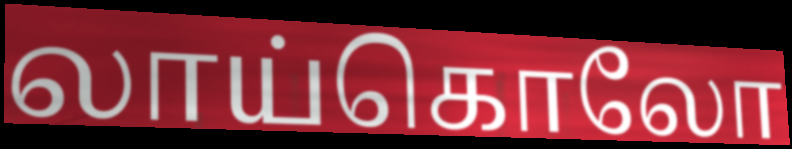
லாய்கொலோ